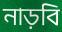
নাড়বি